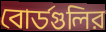
বোর্ডগুলির